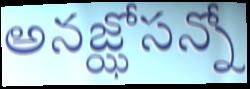
అనజ్ఝోసన్నో